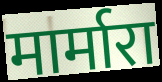
मार्मारा